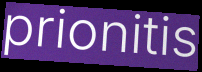
prionitis